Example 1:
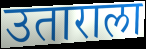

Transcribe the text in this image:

उताराला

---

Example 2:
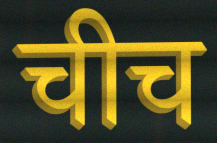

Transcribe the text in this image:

चीच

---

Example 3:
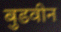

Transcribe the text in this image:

बुडवीन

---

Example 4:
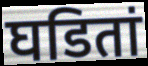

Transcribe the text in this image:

घडितां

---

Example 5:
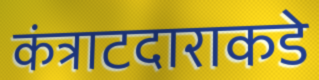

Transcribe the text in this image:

कंत्राटदाराकडे